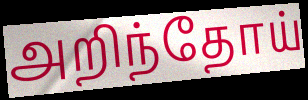
அறிந்தோய்